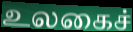
உலகைச்